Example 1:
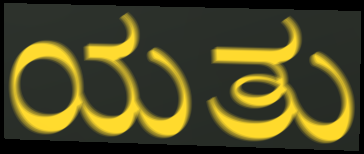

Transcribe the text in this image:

ಯತು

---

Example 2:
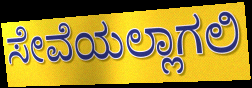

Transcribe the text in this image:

ಸೇವೆಯಲ್ಲಾಗಲಿ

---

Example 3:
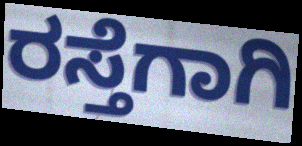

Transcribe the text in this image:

ರಸ್ತೆಗಾಗಿ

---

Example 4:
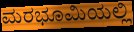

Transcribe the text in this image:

ಮರಭೂಮಿಯಲ್ಲಿ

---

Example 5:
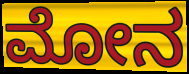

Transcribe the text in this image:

ಮೋನ